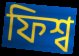
ফিশ্ব